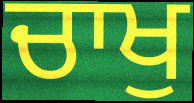
ਚਾਖੁ